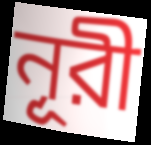
নূরী